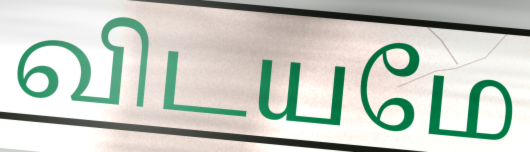
விடயமே